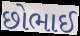
છોભાઈ